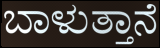
ಬಾಳುತ್ತಾನೆ